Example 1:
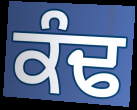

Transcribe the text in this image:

ਕੰਢ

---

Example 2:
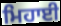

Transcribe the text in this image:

ਮਿਹਾਈ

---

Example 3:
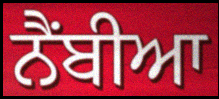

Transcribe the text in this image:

ਨੈਂਬੀਆ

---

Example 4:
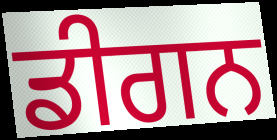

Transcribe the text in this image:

ਡੀਗਨ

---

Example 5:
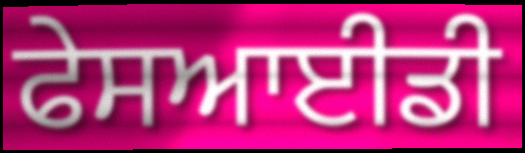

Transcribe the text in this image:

ਫੇਸਆਈਡੀ